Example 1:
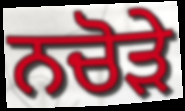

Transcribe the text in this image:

ਨਚੋੜੇ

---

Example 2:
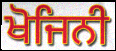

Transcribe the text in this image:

ਖੋਜਿਨੀ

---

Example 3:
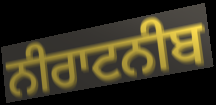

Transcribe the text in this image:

ਨੀਰਾਟਨੀਬ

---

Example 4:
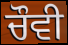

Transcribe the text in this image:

ਚੌਵੀ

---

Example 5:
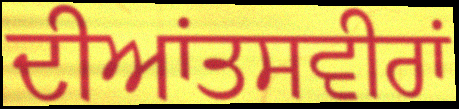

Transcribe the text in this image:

ਦੀਆਂਤਸਵੀਰਾਂ